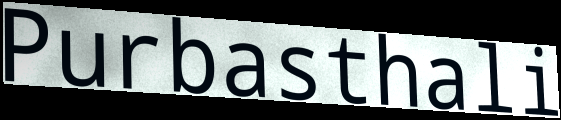
Purbasthali